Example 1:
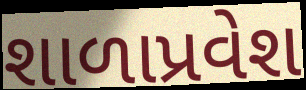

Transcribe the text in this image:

શાળાપ્રવેશ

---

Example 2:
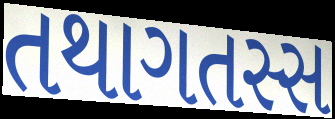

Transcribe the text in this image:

તથાગતસ્સ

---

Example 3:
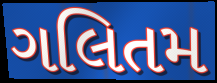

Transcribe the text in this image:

ગલિતમ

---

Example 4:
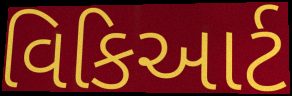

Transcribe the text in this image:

વિકિઆર્ટ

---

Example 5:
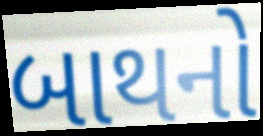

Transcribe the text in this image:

બાથનો